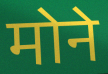
मोने